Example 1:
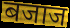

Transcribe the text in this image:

बजाज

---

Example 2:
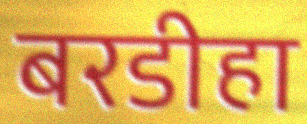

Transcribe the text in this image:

बरडीहा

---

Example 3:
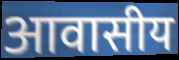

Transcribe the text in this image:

आवासीय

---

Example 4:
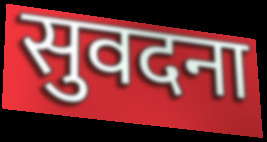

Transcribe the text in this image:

सुवदना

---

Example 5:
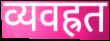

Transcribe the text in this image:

व्यवह्रत